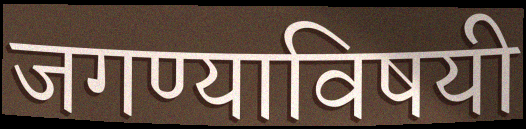
जगण्याविषयी